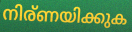
നിര്ണയിക്കുക